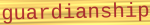
guardianship